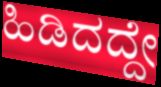
ಹಿಡಿದದ್ದೇ